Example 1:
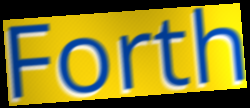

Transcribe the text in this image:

Forth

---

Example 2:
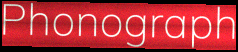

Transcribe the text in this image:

Phonograph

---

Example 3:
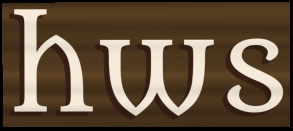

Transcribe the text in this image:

hws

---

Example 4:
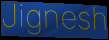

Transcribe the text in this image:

Jignesh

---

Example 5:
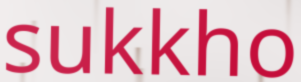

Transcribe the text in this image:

sukkho